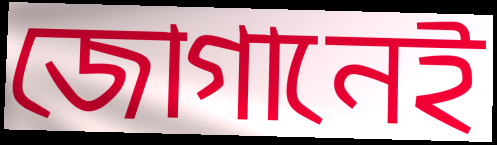
জোগানেই